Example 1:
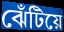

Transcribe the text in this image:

ঝেঁটিয়ে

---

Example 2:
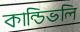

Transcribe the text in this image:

কান্ডিভলি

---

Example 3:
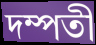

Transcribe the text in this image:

দম্পতী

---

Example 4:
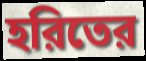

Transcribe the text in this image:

হরিতের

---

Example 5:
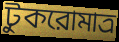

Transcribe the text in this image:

টুকরোমাত্র